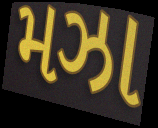
મઝા